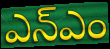
ఎన్ఎం